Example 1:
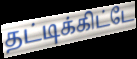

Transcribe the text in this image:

தட்டிக்கிட்டே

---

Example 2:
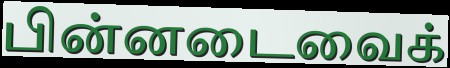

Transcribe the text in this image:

பின்னடைவைக்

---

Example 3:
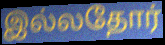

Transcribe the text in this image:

இல்லதோர்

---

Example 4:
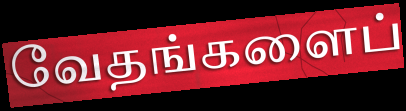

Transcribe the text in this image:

வேதங்களைப்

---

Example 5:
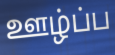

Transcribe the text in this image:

ஊழ்ப்ப